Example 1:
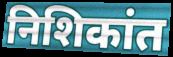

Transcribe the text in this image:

निशिकांत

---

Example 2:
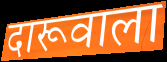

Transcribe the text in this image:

दारूवाला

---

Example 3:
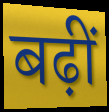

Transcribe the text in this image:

बढ़ीं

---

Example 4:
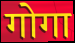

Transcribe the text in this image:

गोगा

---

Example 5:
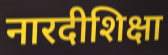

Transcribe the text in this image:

नारदीशिक्षा